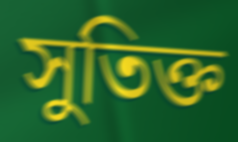
সুতিক্ত